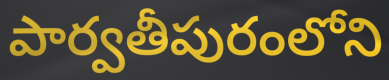
పార్వతీపురంలోని